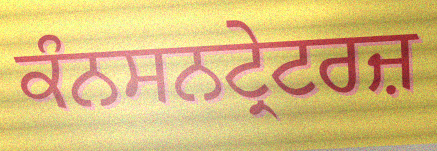
ਕੰਨਸਨਟ੍ਰੇਟਰਜ਼